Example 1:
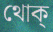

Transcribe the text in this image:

থোক্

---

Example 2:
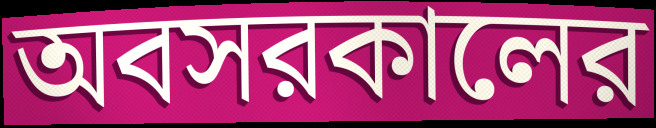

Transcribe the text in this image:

অবসরকালের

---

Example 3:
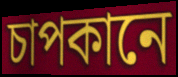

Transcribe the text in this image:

চাপকানে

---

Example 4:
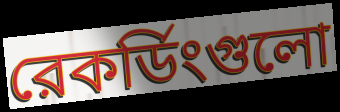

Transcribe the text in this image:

রেকর্ডিংগুলো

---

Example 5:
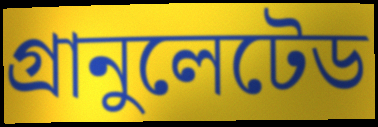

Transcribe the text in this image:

গ্রানুলেটেড